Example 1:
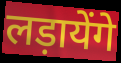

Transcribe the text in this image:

लड़ायेंगे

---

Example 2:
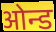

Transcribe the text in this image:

ओन्ड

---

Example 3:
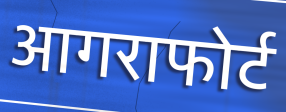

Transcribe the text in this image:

आगराफोर्ट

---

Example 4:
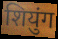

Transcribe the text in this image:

शियुंग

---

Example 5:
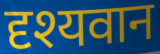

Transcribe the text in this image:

दृश्यवान